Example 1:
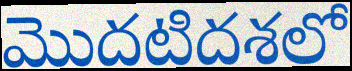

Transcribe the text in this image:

మొదటిదశలో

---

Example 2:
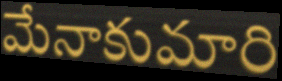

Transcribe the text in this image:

మేనాకుమారి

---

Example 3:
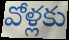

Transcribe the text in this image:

వోళ్లకు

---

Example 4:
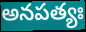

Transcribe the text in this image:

అనపత్యః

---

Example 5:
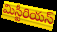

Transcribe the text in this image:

మిస్టీరియస్